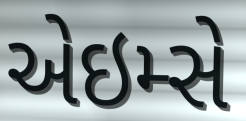
એઇમ્સે